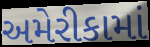
અમેરીકામાં